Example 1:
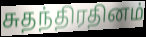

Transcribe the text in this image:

சுதந்திரதினம்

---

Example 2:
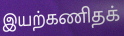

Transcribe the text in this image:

இயற்கணிதக்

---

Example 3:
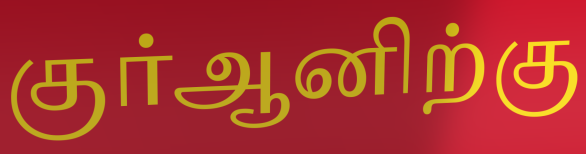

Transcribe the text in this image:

குர்ஆனிற்கு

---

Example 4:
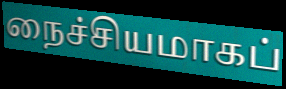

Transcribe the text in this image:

நைச்சியமாகப்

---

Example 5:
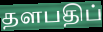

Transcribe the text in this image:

தளபதிப்